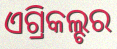
ଏଗ୍ରିକଲ୍ଚର